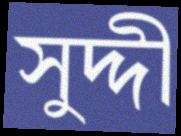
সুদ্দী